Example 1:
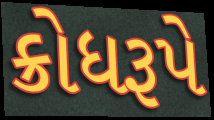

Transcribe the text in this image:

ક્રોધરૂપે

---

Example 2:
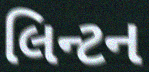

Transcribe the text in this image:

લિન્ટન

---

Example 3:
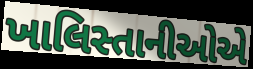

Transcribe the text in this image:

ખાલિસ્તાનીઓએ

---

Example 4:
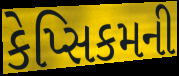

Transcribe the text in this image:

કેપ્સિકમની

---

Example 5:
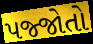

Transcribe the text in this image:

પજ્જોતો